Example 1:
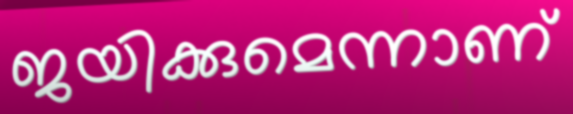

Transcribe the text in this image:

ജയിക്കുമെന്നാണ്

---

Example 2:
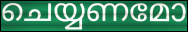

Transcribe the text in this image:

ചെയ്യണമോ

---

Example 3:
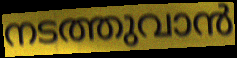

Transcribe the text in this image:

നടത്തുവാൻ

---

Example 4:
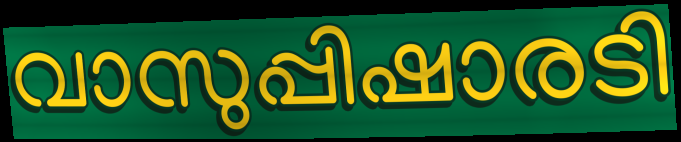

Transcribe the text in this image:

വാസുപ്പിഷാരടി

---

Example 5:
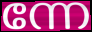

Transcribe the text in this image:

ന്നേ